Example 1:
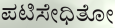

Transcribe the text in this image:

ಪಟಿಸೇಧಿತೋ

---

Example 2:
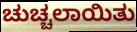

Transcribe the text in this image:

ಚುಚ್ಚಲಾಯಿತು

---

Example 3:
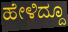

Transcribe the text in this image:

ಹೇಳಿದ್ದೂ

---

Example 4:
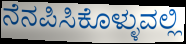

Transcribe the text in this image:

ನೆನಪಿಸಿಕೊಳ್ಳುವಲ್ಲಿ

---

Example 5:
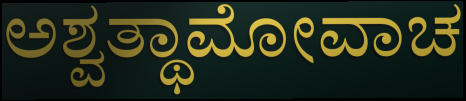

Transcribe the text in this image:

ಅಶ್ವತ್ಥಾಮೋವಾಚ